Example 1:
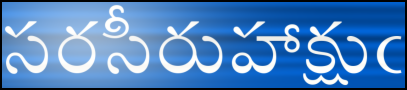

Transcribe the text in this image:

సరసీరుహాక్షుఁ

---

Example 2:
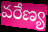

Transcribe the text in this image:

వరేణ్య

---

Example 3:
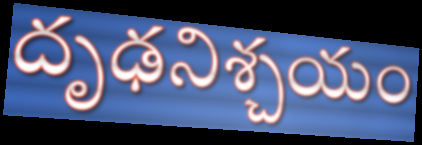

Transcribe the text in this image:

దృఢనిశ్చయం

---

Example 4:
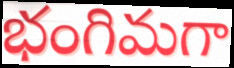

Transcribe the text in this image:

భంగిమగా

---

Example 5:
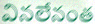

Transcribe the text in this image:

వినలేనంత